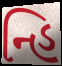
ન્હિ